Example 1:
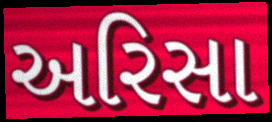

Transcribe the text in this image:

અરિસા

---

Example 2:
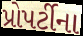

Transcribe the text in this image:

પ્રોપર્ટીના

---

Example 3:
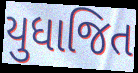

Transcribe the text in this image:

યુધાજિત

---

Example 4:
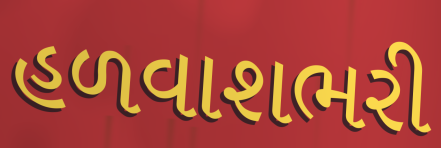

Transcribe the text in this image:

હળવાશભરી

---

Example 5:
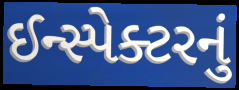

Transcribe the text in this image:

ઈન્સ્પેક્ટરનું